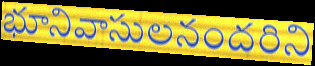
భూనివాసులనందరిని